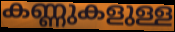
കണ്ണുകളുള്ള